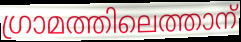
ഗ്രാമത്തിലെത്താന്